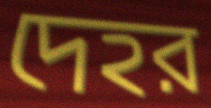
দেহর